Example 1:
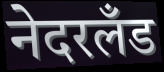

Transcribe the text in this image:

नेदरलँड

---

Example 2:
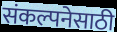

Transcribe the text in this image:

संकल्पनेसाठी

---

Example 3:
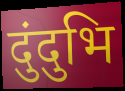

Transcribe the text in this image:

दुंदुभि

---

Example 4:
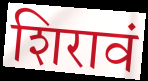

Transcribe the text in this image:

शिरावं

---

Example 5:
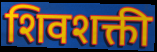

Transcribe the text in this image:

शिवशक्ती